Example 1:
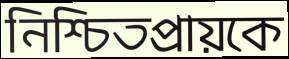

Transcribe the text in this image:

নিশ্চিতপ্রায়কে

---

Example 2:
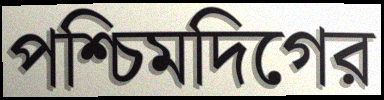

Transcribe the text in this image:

পশ্চিমদিগের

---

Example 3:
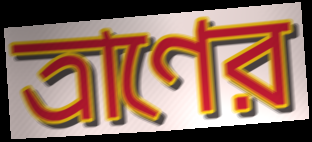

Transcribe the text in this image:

ত্রাণের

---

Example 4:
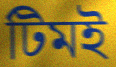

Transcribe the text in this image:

টিমই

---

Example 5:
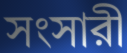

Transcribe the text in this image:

সংসারী